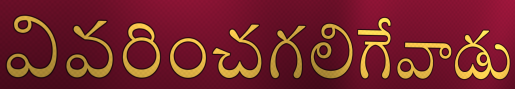
వివరించగలిగేవాడు